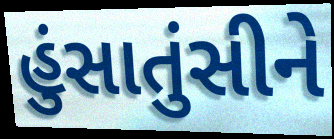
હુંસાતુંસીને